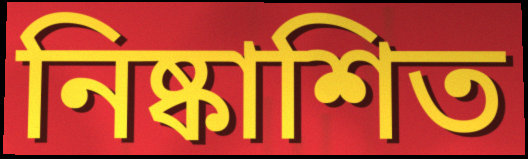
নিষ্কাশিত